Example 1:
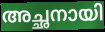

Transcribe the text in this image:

അച്ഛനായി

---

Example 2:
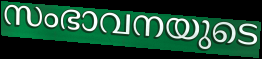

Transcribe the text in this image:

സംഭാവനയുടെ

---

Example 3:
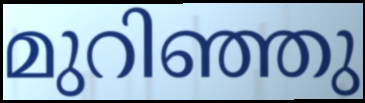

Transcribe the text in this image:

മുറിഞ്ഞു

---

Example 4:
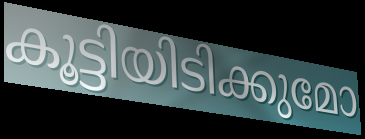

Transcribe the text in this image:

കൂട്ടിയിടിക്കുമോ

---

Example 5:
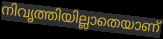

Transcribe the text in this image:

നിവൃത്തിയില്ലാതെയാണ്